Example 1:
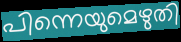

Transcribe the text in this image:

പിന്നെയുമെഴുതി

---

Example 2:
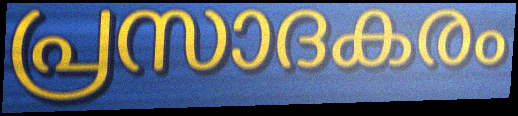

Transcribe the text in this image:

പ്രസാദകരം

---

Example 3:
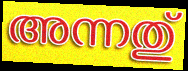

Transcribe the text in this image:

അന്നതു്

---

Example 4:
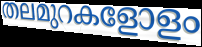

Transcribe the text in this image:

തലമുറകളോളം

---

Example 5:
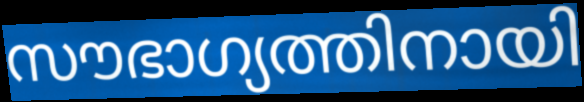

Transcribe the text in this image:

സൗഭാഗ്യത്തിനായി